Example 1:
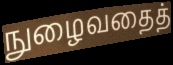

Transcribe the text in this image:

நுழைவதைத்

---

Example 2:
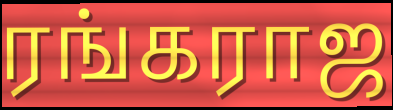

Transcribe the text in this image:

ரங்கராஜ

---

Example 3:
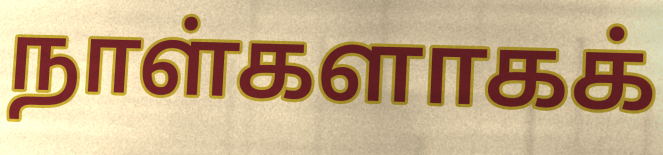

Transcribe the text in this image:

நாள்களாகக்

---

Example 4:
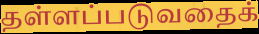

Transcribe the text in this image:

தள்ளப்படுவதைக்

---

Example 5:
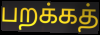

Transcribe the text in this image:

பறக்கத்